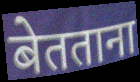
बेतताना